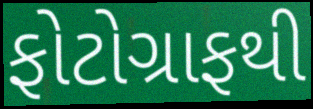
ફોટોગ્રાફથી